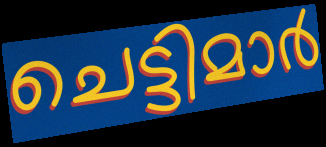
ചെട്ടിമാർ